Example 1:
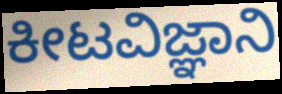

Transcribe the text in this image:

ಕೀಟವಿಜ್ಞಾನಿ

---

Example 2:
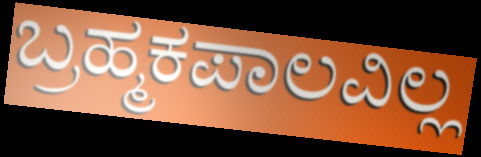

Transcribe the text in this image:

ಬ್ರಹ್ಮಕಪಾಲವಿಲ್ಲ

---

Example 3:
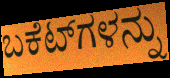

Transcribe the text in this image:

ಬಕೆಟ್‌ಗಳನ್ನು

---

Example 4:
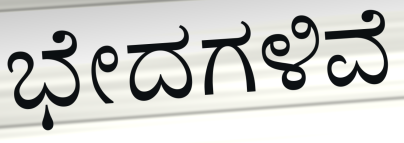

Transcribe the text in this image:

ಭೇದಗಳಿವೆ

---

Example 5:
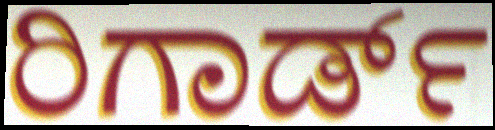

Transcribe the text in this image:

ರಿಗಾರ್ಡ್